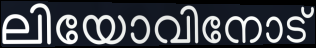
ലിയോവിനോട്